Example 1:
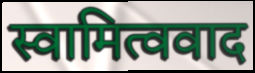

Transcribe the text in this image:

स्वामित्ववाद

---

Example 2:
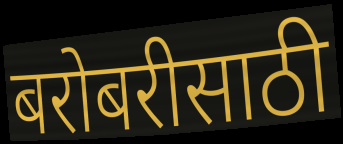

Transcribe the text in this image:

बरोबरीसाठी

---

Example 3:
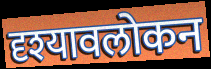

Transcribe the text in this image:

दृश्‍यावलोकन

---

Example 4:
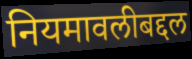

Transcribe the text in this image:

नियमावलीबद्दल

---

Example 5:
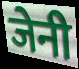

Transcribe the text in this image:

जेनी